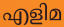
എളിമ